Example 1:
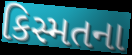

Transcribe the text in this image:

કિસ્મતના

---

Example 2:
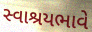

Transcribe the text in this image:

સ્વાશ્રયભાવે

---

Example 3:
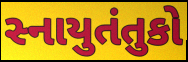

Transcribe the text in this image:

સ્નાયુતંતુકો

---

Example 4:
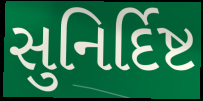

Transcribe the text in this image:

સુનિર્દિષ્ટ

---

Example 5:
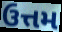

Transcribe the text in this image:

ઉત્તમ